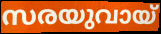
സരയുവായ്